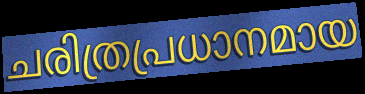
ചരിത്രപ്രധാനമായ